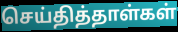
செய்தித்தாள்கள்